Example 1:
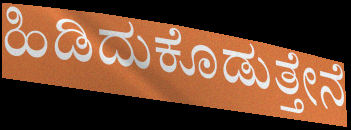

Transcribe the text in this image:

ಹಿಡಿದುಕೊಡುತ್ತೇನೆ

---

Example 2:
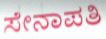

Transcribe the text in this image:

ಸೇನಾಪತಿ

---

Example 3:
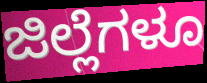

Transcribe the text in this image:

ಜಿಲ್ಲೆಗಳೂ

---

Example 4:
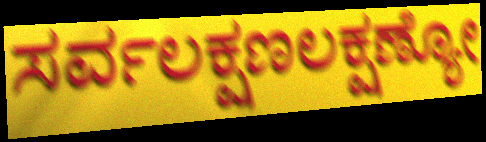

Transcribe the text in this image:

ಸರ್ವಲಕ್ಷಣಲಕ್ಷಣ್ಯೋ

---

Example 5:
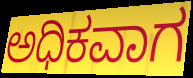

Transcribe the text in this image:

ಅಧಿಕವಾಗ